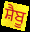
ਸ਼ੈਬੂ